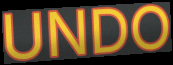
UNDO